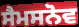
ਸੈਮਸਨੋਵ